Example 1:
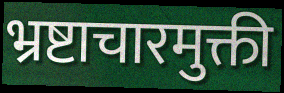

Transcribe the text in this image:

भ्रष्टाचारमुक्ती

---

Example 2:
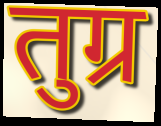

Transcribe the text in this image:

तुग्र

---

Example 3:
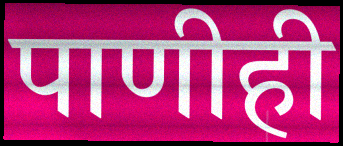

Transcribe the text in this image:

पाणीही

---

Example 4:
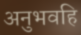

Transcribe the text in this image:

अनुभवहि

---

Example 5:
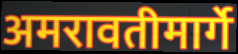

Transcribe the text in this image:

अमरावतीमार्गे